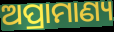
ଅପ୍ରାମାଣ୍ୟ